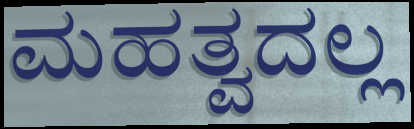
ಮಹತ್ವದಲ್ಲ